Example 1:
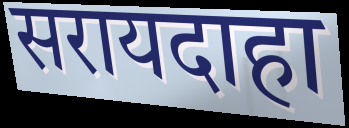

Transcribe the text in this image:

सरायदाहा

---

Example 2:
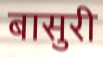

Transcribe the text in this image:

बासुरी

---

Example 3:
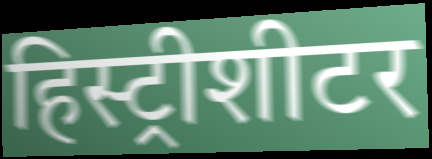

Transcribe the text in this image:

हिस्‍ट्रीशीटर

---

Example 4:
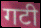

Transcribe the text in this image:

गटी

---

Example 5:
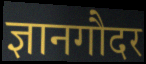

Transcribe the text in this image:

ज्ञानगौदर